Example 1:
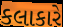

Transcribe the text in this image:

કલાકારે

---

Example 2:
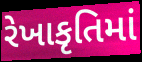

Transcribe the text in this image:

રેખાકૃતિમાં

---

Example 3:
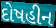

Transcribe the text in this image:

દોષહીન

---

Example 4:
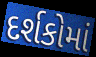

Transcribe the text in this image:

દર્શકોમાં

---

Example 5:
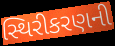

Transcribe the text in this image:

સ્થિરીકરણની